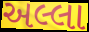
અલ્લા